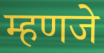
म्हणजे